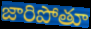
జారిపోతూ